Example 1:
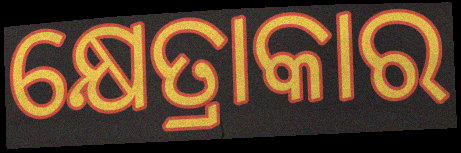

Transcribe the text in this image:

କ୍ଷେତ୍ରାକାର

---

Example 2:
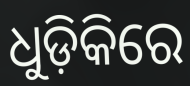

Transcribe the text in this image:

ଧୁଡ଼ିକିରେ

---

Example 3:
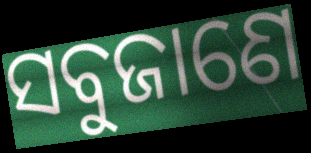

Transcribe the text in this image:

ସବୁଜାଣେ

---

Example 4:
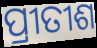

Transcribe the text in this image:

ପ୍ରୀତୀଶ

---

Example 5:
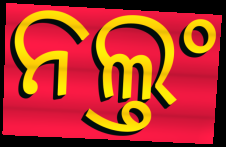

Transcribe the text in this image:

ନଲ୍ତଂ